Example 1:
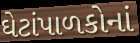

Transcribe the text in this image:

ઘેટાંપાળકોનાં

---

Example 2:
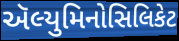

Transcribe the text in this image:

ઍલ્યુમિનોસિલિકેટ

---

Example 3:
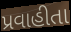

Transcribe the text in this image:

પ્રવાહીતા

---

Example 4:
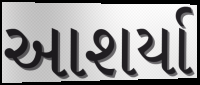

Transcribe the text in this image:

આશર્યા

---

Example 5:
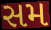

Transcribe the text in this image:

સમ